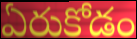
ఏరుకోడం